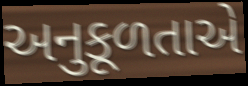
અનુકૂળતાએ